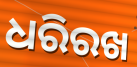
ଧରିରଖ